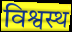
विश्वस्थ